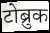
टोब्रुक